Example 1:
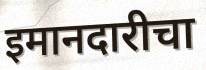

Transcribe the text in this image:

इमानदारीचा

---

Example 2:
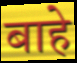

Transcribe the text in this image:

बाहे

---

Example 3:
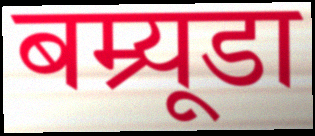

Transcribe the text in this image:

बम्र्यूडा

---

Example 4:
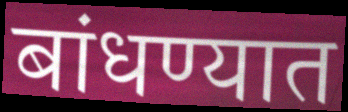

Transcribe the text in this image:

बांधण्यात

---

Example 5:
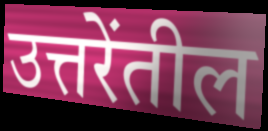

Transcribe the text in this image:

उत्तरेंतील